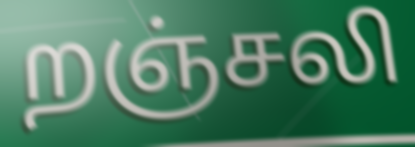
றஞ்சலி